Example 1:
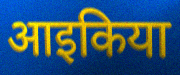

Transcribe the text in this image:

आइकिया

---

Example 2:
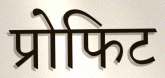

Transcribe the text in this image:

प्रोफिट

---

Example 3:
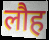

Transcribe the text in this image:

लौह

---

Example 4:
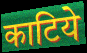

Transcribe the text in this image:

काटिये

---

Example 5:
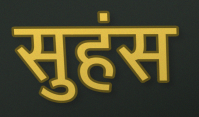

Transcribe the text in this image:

सुहंस